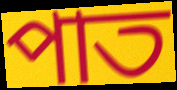
পাত